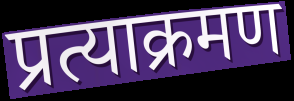
प्रत्याक्रमण